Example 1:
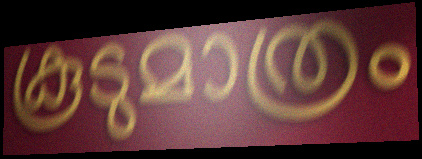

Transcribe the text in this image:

കൂടുമാത്രം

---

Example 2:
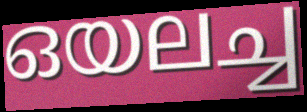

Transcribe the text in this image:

ഒയലച്ച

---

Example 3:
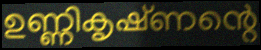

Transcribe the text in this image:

ഉണ്ണികൃഷ്‌ണന്റെ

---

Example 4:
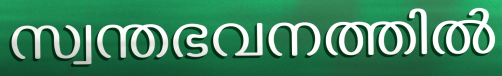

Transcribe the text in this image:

സ്വന്തഭവനത്തിൽ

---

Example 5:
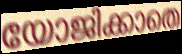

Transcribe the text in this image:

യോജിക്കാതെ